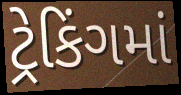
ટ્રેકિંગમાં